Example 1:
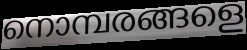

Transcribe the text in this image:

നൊമ്പരങ്ങളെ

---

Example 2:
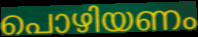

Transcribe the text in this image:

പൊഴിയണം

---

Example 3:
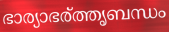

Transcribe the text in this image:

ഭാര്യാഭര്ത്തൃബന്ധം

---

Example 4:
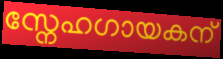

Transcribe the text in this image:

സ്നേഹഗായകന്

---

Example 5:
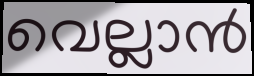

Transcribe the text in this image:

വെല്ലാൻ